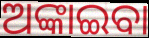
ଅଙ୍କାଇବା